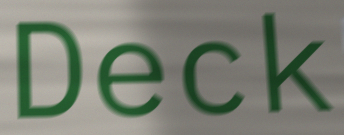
Deck